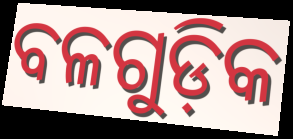
ବଳଗୁଡ଼ିକ